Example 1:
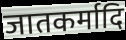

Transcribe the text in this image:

जातकर्मादि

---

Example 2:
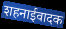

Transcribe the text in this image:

शहनाईवादक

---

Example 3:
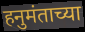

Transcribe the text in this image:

हनुमंताच्या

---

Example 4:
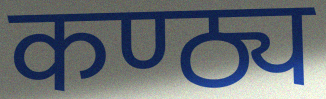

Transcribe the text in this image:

कण्ठ्य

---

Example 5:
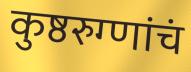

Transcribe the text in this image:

कुष्ठरुग्णांचं